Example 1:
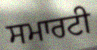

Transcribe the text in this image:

ਸਮਾਰਟੀ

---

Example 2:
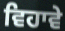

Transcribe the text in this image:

ਵਿਹਾਵੇ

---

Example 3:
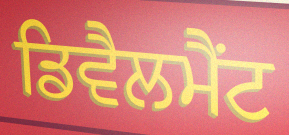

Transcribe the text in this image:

ਡਿਵੈਲਮੈਂਟ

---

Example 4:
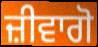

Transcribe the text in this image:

ਜ਼ੀਵਾਗੋ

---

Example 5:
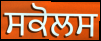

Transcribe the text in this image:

ਸਕੋਲਸ